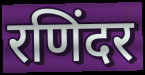
रणिंदर